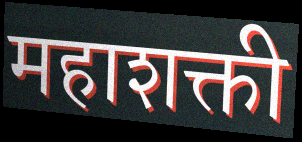
महाशक्ती